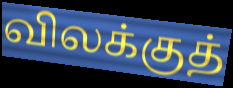
விலக்குத்